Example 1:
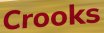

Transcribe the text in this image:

Crooks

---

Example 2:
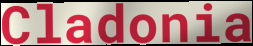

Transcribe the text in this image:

Cladonia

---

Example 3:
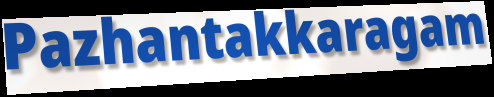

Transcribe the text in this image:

Pazhantakkaragam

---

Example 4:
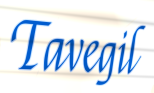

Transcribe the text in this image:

Tavegil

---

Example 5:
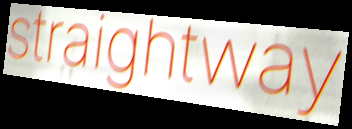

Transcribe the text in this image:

straightway